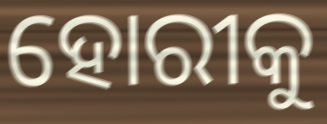
ହୋରୀକୁ